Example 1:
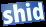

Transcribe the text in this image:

shid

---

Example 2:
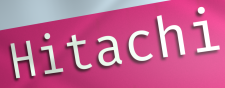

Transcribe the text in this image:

Hitachi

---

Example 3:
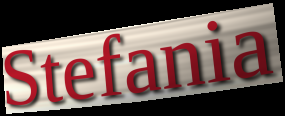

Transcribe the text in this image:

Stefania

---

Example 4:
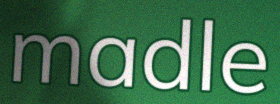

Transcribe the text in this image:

madle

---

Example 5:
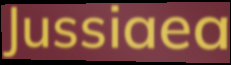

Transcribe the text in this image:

Jussiaea